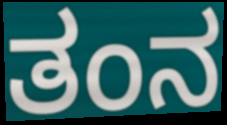
ತಂನ